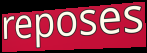
reposes